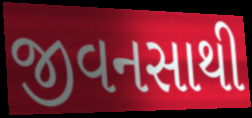
જીવનસાથી